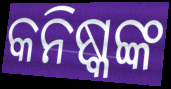
କନିଷ୍କଙ୍କ